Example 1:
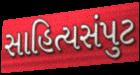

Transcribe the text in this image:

સાહિત્યસંપુટ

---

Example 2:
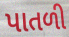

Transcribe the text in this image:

પાતળી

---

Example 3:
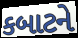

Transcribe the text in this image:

કબાટને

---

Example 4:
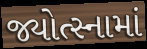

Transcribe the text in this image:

જ્યોત્સ્નામાં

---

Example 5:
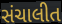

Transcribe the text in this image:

સંચાલીત